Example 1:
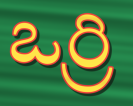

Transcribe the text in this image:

ఒర్రి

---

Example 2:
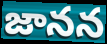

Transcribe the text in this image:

జానన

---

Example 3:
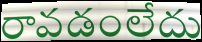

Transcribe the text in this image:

రావడంలేదు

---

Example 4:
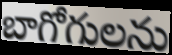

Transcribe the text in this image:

బాగోగులను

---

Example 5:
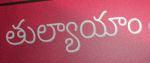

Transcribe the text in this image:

తుల్యాయాం